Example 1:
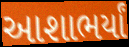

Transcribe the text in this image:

આશાભર્યાં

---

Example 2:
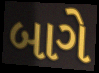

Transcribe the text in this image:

બાગે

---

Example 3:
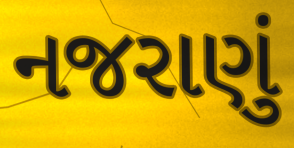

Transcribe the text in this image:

નજરાણું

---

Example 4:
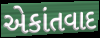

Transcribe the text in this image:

એકાંતવાદ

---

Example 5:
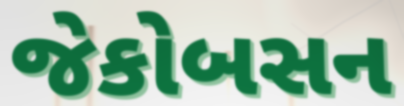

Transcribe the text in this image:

જેકોબસન